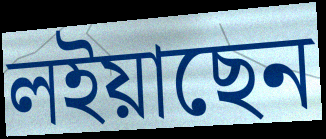
লইয়াছেন